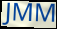
JMM